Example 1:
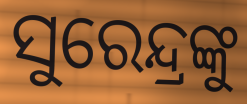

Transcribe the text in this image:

ସୁରେନ୍ଦ୍ରଙ୍କୁ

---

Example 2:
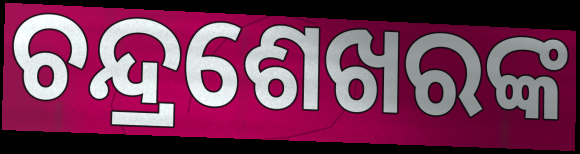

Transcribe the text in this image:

ଚନ୍ଦ୍ରଶେଖରଙ୍କ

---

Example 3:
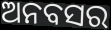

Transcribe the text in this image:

ଅନବସର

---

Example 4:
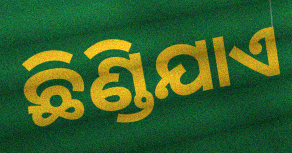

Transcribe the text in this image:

ଛିଣ୍ଡିଯାଏ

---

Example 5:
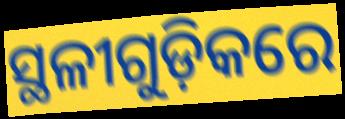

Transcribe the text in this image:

ସ୍ଥଳୀଗୁଡ଼ିକରେ